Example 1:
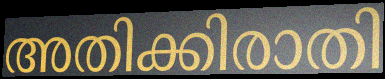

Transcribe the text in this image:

അതിക്കിരാതി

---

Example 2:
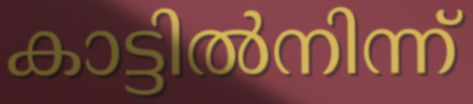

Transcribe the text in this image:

കാട്ടിൽനിന്ന്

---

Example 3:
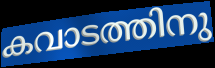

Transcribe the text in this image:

കവാടത്തിനു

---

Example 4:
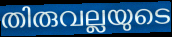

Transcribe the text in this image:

തിരുവല്ലയുടെ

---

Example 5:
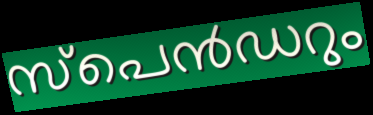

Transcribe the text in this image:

സ്പെൻഡറും